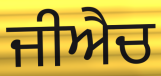
ਜੀਐਚ